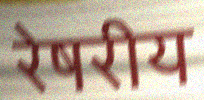
रेषरीय